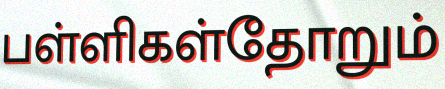
பள்ளிகள்தோறும்